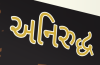
અનિરુદ્ધ